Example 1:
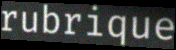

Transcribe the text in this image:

rubrique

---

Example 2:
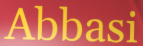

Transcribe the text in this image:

Abbasi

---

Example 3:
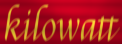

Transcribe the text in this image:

kilowatt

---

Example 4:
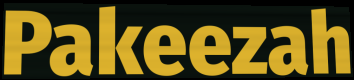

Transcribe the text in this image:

Pakeezah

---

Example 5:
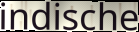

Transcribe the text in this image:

indische